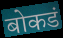
बोकडं